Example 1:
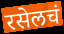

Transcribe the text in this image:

रसेलचं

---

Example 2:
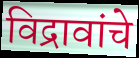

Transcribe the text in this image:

विद्रावांचे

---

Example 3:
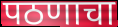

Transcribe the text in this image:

पठणाचा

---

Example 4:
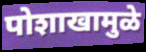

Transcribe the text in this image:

पोशाखामुळे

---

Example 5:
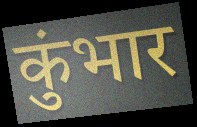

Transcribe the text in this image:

कुंभार